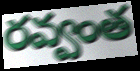
రవ్వంత